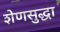
शेणसुद्धा